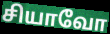
சியாவோ